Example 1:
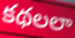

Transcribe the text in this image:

కథలలా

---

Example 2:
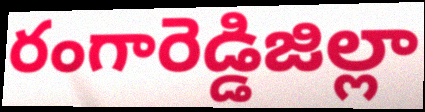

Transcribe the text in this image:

రంగారెడ్డిజిల్లా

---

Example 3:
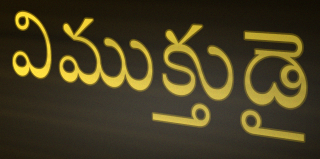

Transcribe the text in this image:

విముక్తుడై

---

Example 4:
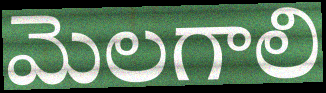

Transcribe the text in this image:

మెలగాలి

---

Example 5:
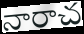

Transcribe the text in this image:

నారాచ